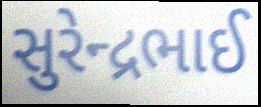
સુરેન્દ્રભાઈ